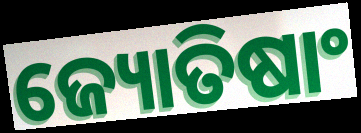
ଜ୍ୟୋତିଷାଂ